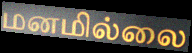
மனமில்லை